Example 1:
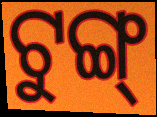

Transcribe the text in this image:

ଟୁଙ୍ଗ୍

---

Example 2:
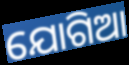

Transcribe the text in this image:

ଯୋଗିଆ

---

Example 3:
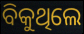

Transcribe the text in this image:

ବିକୁଥିଲେ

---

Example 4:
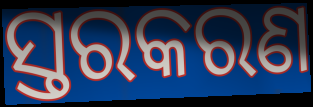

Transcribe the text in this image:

ସ୍ତରକରଣ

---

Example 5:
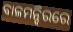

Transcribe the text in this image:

ବାଳମନ୍ଦିରରେ